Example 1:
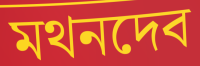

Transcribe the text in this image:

মথনদেব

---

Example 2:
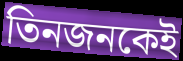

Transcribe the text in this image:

তিনজনকেই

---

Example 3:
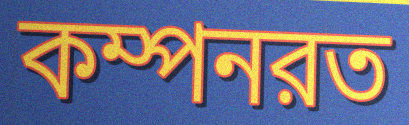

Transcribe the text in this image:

কম্পনরত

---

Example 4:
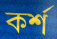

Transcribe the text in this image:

কর্শ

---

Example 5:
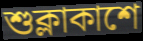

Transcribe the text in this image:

শুক্লাকাশে